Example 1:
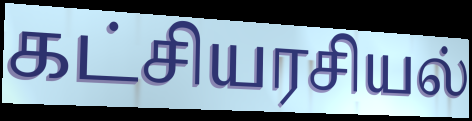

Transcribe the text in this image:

கட்சியரசியல்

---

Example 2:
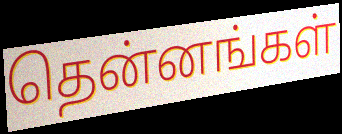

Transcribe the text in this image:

தென்னங்கள்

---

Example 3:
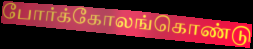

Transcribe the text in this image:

போர்க்கோலங்கொண்டு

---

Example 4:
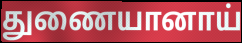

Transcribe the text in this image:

துணையானாய்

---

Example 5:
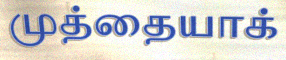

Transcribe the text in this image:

முத்தையாக்